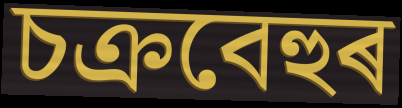
চক্ৰবেহুৰ